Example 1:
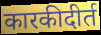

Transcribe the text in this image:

कारकीदीर्त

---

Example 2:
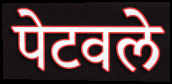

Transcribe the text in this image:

पेटवले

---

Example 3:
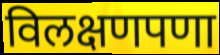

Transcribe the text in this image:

विलक्षणपणा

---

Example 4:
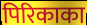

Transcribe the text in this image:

पिरिकाका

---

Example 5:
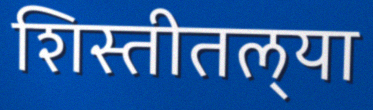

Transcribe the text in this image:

शिस्तीतल्या